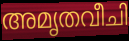
അമൃതവീചി